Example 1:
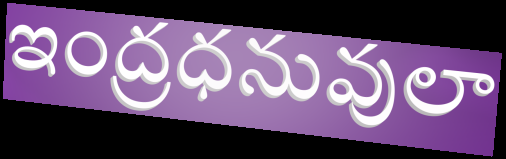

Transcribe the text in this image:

ఇంద్రధనువులా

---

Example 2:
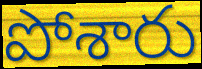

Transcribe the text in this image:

పోశారు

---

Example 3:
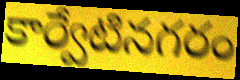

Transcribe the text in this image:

కార్వేటినగరం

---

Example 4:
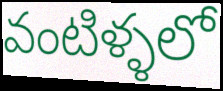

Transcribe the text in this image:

వంటిళ్ళలో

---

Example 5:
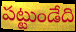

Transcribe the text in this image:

పట్టుండేది